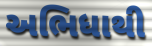
અભિધાથી